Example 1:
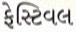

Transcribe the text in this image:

ફેસ્ટિવલ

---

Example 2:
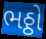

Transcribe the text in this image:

ભઠ્ઠો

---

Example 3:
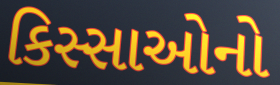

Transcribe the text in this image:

કિસ્સાઓનો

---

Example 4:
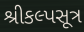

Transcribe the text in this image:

શ્રીકલ્પસૂત્ર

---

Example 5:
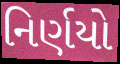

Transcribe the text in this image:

નિર્ણયો